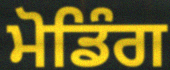
ਮੋਡਿੰਗ